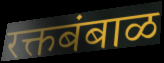
रक्तबंबाळ